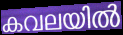
കവലയിൽ